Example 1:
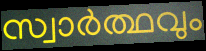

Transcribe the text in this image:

സ്വാർത്ഥവും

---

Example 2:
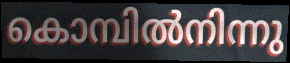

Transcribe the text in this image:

കൊമ്പിൽനിന്നു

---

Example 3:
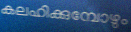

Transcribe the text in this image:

കലഹിക്കുമ്പോഴും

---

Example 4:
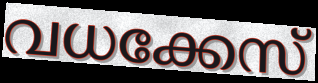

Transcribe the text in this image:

വധക്കേസ്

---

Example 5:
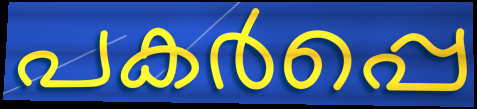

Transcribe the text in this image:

പകർപ്പെ